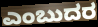
ಎಂಬುದರ